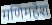
मणिमहेश